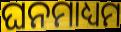
ଘନମାଧ୍ୟମ